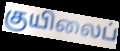
குயிலைப்